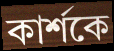
কার্শকে